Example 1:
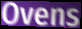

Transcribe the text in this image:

Ovens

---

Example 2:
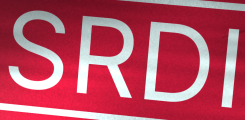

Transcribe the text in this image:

SRDI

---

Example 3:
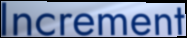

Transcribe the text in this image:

Increment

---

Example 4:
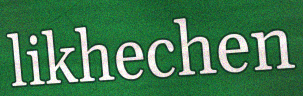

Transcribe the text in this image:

likhechen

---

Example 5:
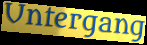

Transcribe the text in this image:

Untergang